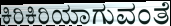
ಕಿರಿಕಿರಿಯಾಗುವಂತೆ